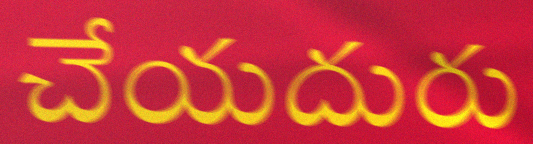
చేయదురు